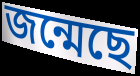
জন্মেছে